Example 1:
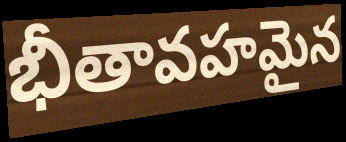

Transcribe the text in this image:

భీతావహమైన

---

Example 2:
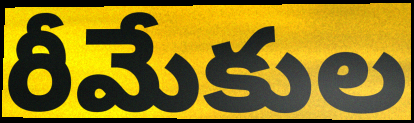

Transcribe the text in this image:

రీమేకుల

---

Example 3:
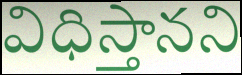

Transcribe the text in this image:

విధిస్తానని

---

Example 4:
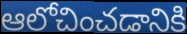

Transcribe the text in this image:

ఆలోచించడానికి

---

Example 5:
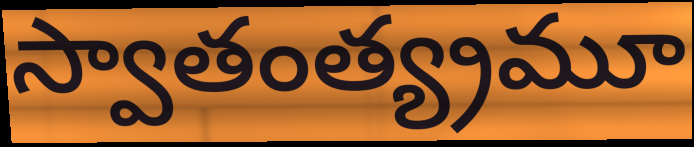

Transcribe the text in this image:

స్వాతంత్య్రమూ